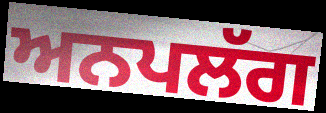
ਅਨਪਲੱਗ